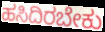
ಹಸಿದಿರಬೇಕು